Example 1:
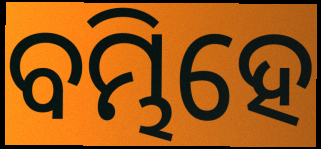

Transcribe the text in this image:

ବମ୍ଭିହେ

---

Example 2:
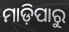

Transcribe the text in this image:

ମାଡ଼ିପାରୁ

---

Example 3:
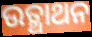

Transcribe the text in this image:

ଉତ୍ଥାଥନ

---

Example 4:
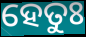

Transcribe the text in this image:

ହେତୁଃ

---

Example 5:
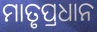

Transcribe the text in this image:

ମାତୃପ୍ରଧାନ